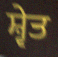
ਸ਼੍ਵੇਤ